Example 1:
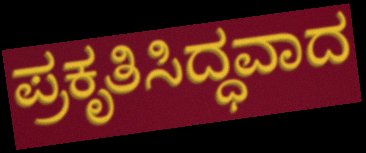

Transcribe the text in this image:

ಪ್ರಕೃತಿಸಿದ್ಧವಾದ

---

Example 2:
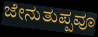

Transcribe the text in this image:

ಜೇನುತುಪ್ಪವೂ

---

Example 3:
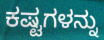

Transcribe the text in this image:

ಕಷ್ಟಗಳನ್ನು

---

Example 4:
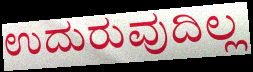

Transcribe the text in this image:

ಉದುರುವುದಿಲ್ಲ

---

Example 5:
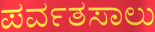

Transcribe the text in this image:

ಪರ್ವತಸಾಲು